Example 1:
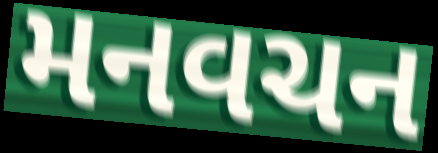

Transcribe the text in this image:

મનવચન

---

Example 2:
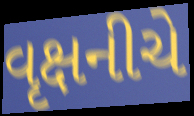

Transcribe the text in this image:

વૃક્ષનીચે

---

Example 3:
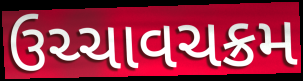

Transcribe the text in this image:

ઉચ્ચાવચક્રમ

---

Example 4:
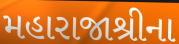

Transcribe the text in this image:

મહારાજાશ્રીના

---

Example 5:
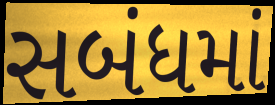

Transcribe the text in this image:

સબંધમાં